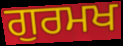
ਗੁਰਮਖ